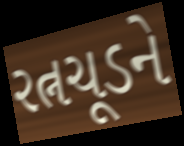
રત્નચૂડને